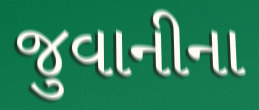
જુવાનીના